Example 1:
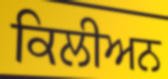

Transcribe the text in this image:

ਕਿਲੀਅਨ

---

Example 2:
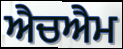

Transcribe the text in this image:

ਐਚਐਮ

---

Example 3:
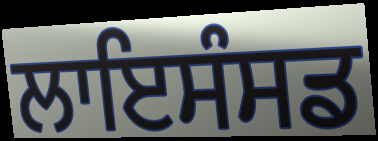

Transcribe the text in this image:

ਲਾਇਸੰਸਡ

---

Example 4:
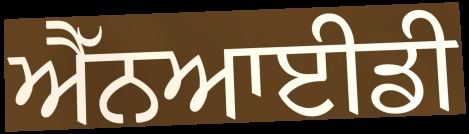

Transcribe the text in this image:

ਐੱਨਆਈਡੀ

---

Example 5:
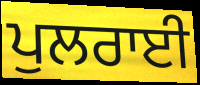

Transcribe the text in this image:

ਪੁਲਰਾਈ